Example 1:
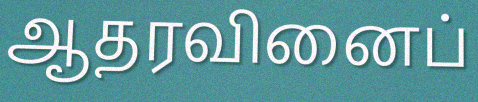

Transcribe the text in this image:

ஆதரவினைப்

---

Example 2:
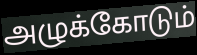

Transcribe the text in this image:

அழுக்கோடும்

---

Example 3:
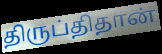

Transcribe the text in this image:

திருப்திதான்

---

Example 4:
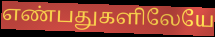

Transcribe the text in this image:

எண்பதுகளிலேயே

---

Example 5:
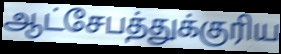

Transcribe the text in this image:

ஆட்சேபத்துக்குரிய